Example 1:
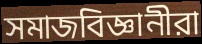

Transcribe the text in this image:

সমাজবিজ্ঞানীরা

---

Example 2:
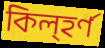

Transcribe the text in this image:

কিল্‌হর্ণ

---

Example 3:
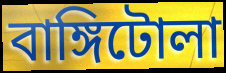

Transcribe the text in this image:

বাঙ্গিটোলা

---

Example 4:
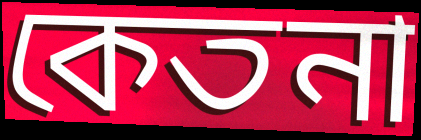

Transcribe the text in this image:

কেতনা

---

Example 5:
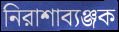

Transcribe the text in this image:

নিরাশাব্যঞ্জক